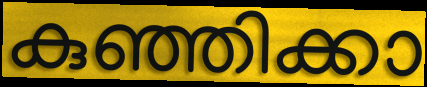
കുഞ്ഞിക്കാ